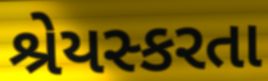
શ્રેયસ્કરતા